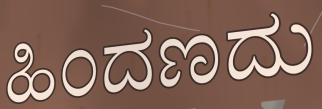
ಹಿಂದಣದು